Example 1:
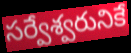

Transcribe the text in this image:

సర్వేశ్వరునికే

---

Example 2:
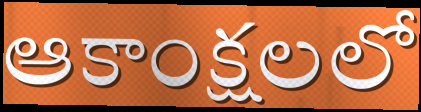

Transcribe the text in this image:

ఆకాంక్షలలో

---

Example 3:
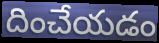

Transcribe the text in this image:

దించేయడం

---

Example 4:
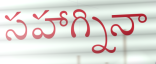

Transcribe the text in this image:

సహాగ్నినా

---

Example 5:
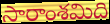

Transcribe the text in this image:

సారాంశమిది